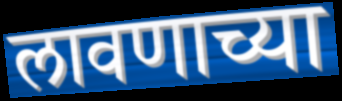
लावणाच्या